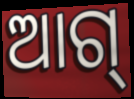
ଆଗ୍